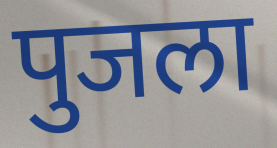
पुजला